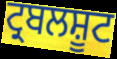
ਟ੍ਰਬਲਸ਼ੂਟ